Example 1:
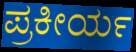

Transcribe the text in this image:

ಪ್ರಕೀರ್ಯ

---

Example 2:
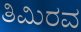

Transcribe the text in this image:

ತಿಮಿರವ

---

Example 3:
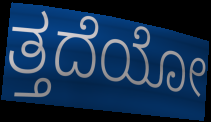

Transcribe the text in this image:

ತ್ತದೆಯೋ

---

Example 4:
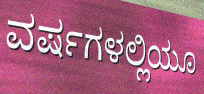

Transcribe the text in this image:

ವರ್ಷಗಳಲ್ಲಿಯೂ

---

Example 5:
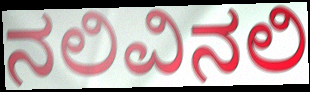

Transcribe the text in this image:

ನಲಿವಿನಲಿ